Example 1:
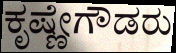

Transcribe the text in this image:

ಕೃಷ್ಣೇಗೌಡರು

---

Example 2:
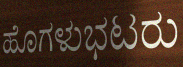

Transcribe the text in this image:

ಹೊಗಳುಭಟರು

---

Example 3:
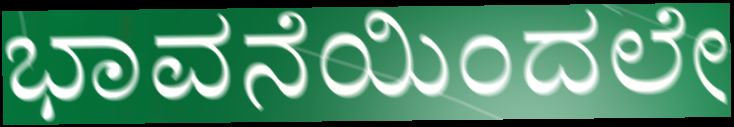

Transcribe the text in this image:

ಭಾವನೆಯಿಂದಲೇ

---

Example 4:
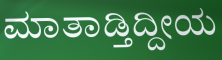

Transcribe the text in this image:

ಮಾತಾಡ್ತಿದ್ದೀಯ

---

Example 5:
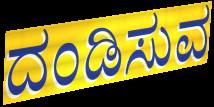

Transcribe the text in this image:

ದಂಡಿಸುವ